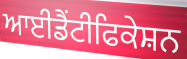
ਆਈਡੈਂਟੀਫਿਕੇਸ਼ਨ